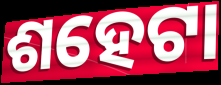
ଶହେଟା